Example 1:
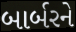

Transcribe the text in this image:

બાર્બરને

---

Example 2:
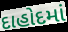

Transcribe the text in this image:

દાહોદમાં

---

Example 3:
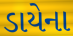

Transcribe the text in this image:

ડાયેના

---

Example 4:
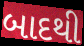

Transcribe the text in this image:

બાદથી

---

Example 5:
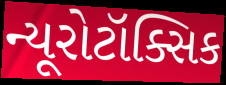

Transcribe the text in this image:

ન્યૂરોટૉક્સિક